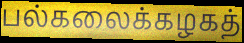
பல்கலைக்கழகத்